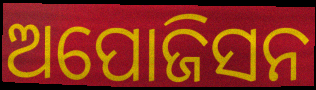
ଅପୋଜିସନ